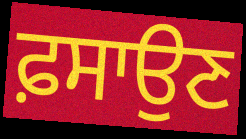
ਫ਼ਸਾਉਣ